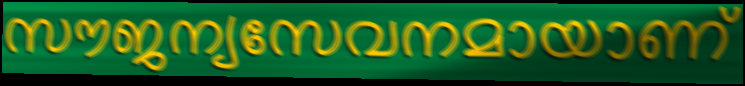
സൗജന്യസേവനമായാണ്